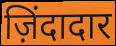
ज़िंदादार